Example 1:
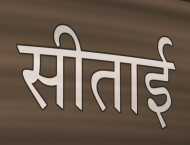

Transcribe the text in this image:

सीताई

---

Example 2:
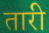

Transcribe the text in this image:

तारी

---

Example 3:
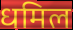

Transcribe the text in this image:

धमिल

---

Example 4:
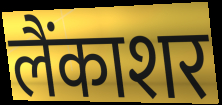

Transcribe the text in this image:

लैंकाशर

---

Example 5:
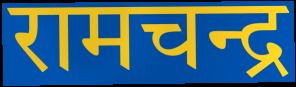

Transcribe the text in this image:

रामचन्‍द्र